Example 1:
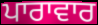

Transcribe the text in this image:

ਪਾਰਾਵਾਰ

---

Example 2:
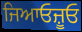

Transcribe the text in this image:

ਜਿਆਓਜ਼ੂਓ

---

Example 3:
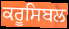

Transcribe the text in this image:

ਕਰੂਸਿਬਲ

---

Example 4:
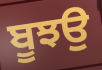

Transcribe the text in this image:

ਬੂਝਉ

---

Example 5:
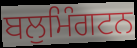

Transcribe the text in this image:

ਬਲੁਮਿੰਗਟਨ